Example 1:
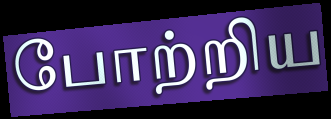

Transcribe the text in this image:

போற்றிய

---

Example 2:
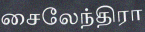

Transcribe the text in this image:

சைலேந்திரா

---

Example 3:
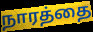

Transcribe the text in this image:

நாரத்தை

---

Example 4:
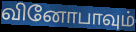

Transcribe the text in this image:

வினோபாவும்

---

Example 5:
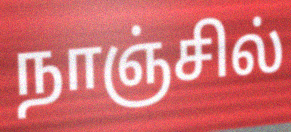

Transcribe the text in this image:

நாஞ்சில்